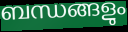
ബന്ധങ്ങളും